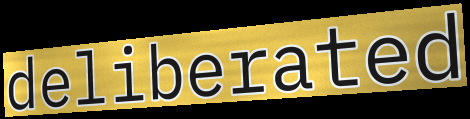
deliberated